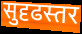
सुदृढस्तर